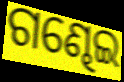
ଗଣ୍ଢେଇ